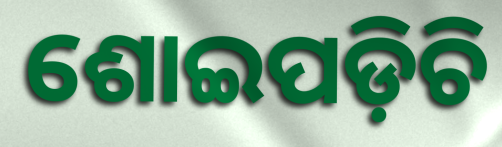
ଶୋଇପଡ଼ିଚି